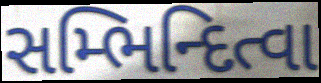
સમ્ભિન્દિત્વા